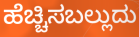
ಹೆಚ್ಚಿಸಬಲ್ಲುದು